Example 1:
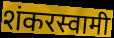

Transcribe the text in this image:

शंकरस्वामी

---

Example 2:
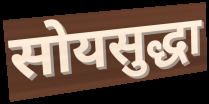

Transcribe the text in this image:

सोयसुद्धा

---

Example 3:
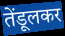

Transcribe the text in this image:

तेंडूलकर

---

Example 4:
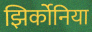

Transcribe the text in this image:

झिर्कोनिया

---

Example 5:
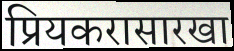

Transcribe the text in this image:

प्रियकरासारखा